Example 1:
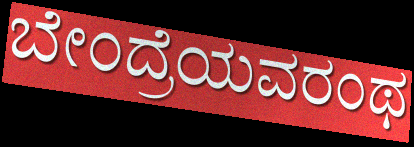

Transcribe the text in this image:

ಬೇಂದ್ರೆಯವರಂಥ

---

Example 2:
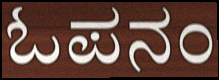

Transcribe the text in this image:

ಓಪನಂ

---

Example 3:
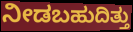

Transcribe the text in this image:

ನೀಡಬಹುದಿತ್ತು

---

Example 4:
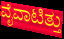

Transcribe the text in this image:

ವೈವಾಟಿತ್ತು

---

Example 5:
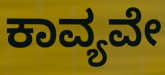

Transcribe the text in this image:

ಕಾವ್ಯವೇ